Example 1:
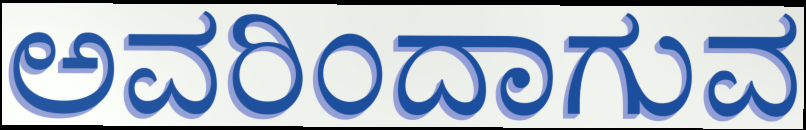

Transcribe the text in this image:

ಅವರಿಂದಾಗುವ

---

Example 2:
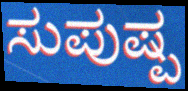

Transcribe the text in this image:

ಸುಪುಷ್ಪ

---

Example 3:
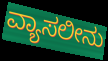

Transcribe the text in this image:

ವ್ಯಾಸಲೀನು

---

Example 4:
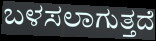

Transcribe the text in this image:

ಬಳಸಲಾಗುತ್ತದೆ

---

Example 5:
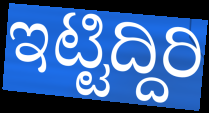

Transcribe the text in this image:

ಇಟ್ಟಿದ್ದಿರಿ